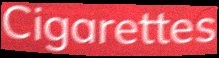
Cigarettes